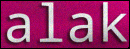
alak